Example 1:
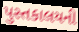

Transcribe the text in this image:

પુસ્તકાલયની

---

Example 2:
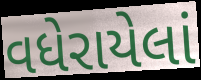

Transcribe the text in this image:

વધેરાયેલાં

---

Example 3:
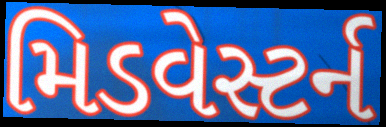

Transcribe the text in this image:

મિડવેસ્ટર્ન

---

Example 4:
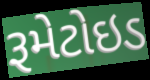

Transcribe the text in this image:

રૂમેટોઇડ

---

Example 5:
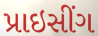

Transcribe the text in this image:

પ્રાઇસીંગ